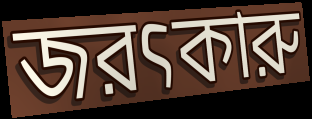
জরৎকারু